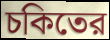
চকিতের